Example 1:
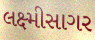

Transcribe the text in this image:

લક્ષ્મીસાગર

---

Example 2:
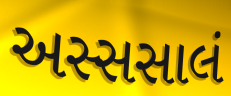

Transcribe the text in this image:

અસ્સસાલં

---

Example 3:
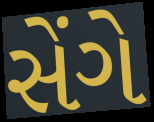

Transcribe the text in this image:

સેંગે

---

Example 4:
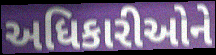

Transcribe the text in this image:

અધિકારીઓને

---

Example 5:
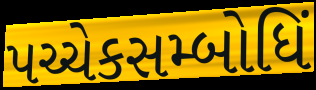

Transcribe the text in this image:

પચ્ચેકસમ્બોધિં